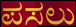
ಪಸಲು